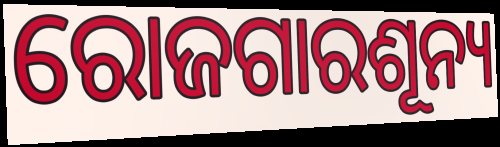
ରୋଜଗାରଶୂନ୍ୟ